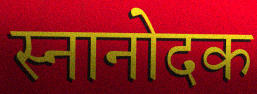
स्नानोदक